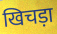
खिचड़ा